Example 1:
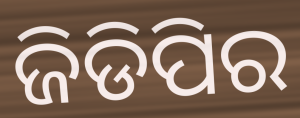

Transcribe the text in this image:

ଜିଡିପିର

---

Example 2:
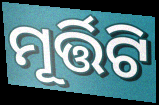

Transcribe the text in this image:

ମୂର୍ତ୍ତିଟି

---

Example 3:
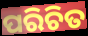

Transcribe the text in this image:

ପରିଚିତ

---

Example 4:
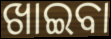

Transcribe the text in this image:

ଖାଇବା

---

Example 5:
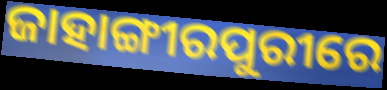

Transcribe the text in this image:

ଜାହାଙ୍ଗୀରପୁରୀରେ